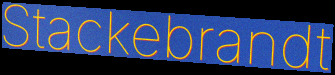
Stackebrandt